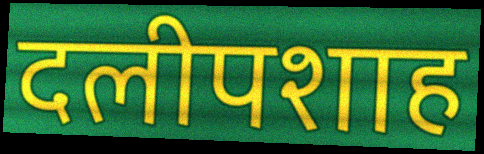
दलीपशाह